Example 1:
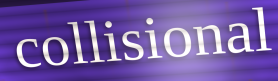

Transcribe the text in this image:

collisional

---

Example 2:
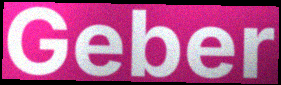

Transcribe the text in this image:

Geber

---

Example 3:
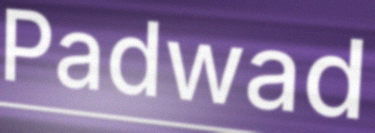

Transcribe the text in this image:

Padwad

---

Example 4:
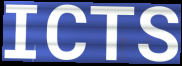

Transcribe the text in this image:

ICTS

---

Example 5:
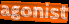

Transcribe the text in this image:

agonist